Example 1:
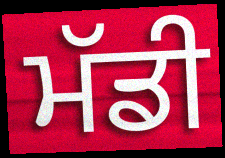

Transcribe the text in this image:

ਮੱਡੀ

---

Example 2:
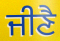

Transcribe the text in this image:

ਜੀਣੈ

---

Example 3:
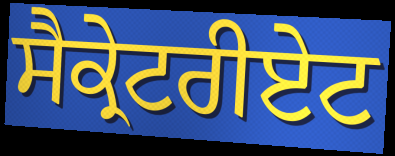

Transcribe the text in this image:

ਸੈਕ੍ਰੇਟਰੀਏਟ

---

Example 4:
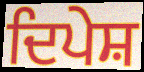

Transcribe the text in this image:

ਦਿਪੇਸ਼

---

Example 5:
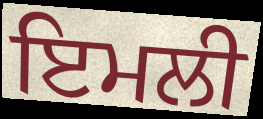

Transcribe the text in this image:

ਇਮਲੀ